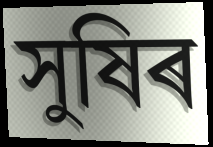
সুষিৰ